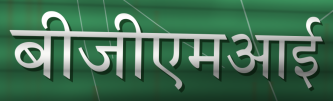
बीजीएमआई